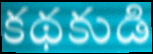
కథకుడి